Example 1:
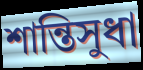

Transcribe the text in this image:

শান্তিসুধা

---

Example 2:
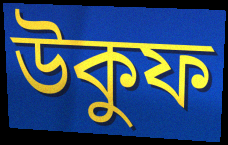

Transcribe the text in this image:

উকুফ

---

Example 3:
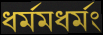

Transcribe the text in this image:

ধর্মমধর্মং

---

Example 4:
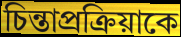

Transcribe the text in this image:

চিন্তাপ্রক্রিয়াকে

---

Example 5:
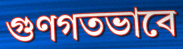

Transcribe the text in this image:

গুণগতভাবে